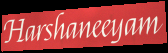
Harshaneeyam